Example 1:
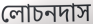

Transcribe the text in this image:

লোচনদাস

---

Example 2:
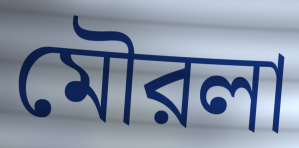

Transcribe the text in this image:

মৌরলা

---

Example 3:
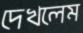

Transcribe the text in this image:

দেখলেম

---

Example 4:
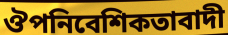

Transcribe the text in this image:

ঔপনিবেশিকতাবাদী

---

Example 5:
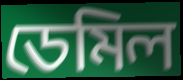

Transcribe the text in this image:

ডেমিল